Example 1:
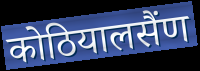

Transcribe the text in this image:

कोठियालसैंण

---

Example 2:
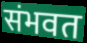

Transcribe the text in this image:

संभवत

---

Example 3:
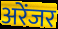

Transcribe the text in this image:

अरेंजर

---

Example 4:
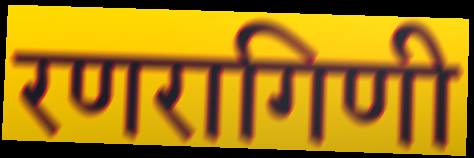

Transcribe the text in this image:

रणरागिणी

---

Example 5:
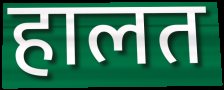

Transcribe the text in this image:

हालत